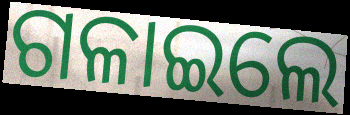
ଗଳାଇଲେ